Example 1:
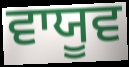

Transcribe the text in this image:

ਵਾਯੂਵ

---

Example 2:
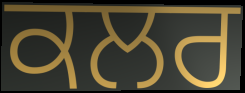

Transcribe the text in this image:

ਕਲਰ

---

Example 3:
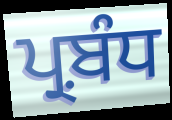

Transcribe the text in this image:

ਪ਼੍ਰਬੰਧ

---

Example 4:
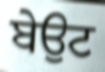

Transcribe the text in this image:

ਬੇਉਟ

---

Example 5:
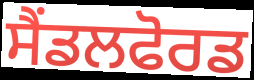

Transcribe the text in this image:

ਸੈਂਡਲਫੋਰਡ